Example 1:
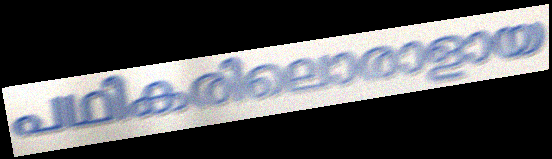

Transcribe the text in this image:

പഥികരിലൊരാളായ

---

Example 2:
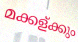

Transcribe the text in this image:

മക്കള്ക്കും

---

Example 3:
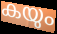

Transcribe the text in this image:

കയും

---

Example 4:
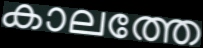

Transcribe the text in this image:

കാലത്തേ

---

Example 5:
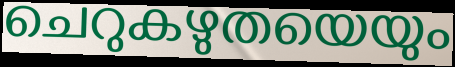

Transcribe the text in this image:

ചെറുകഴുതയെയും